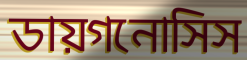
ডায়গনোসিস